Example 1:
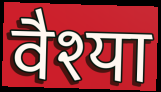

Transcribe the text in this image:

वैश्या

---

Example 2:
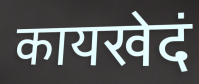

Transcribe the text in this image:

कायखेदं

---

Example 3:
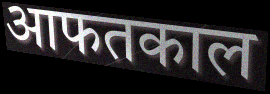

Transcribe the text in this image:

आफतकाल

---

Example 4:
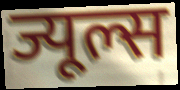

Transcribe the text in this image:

ज्यूल्स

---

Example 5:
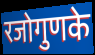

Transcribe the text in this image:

रजोगुणके